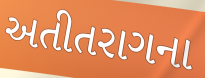
અતીતરાગના